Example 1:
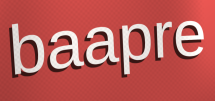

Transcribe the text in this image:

baapre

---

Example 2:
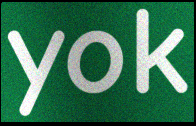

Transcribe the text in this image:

yok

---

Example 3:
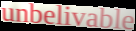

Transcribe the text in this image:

unbelivable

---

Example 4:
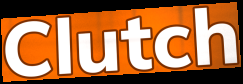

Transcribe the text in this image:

Clutch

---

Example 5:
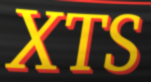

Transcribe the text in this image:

XTS